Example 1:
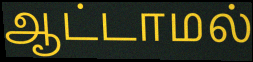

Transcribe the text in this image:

ஆட்டாமல்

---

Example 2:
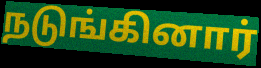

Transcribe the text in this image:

நடுங்கினார்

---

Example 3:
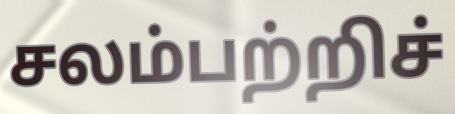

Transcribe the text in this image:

சலம்பற்றிச்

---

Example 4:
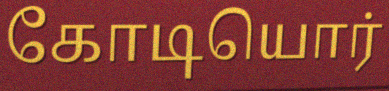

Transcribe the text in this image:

கோடியொர்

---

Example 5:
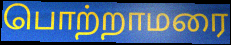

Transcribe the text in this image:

பொற்றாமரை